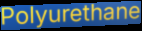
Polyurethane